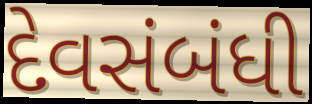
દેવસંબંધી